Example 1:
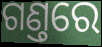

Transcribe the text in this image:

ଗଣ୍ତରେ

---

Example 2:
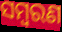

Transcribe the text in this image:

ସମ୍ଵରଣ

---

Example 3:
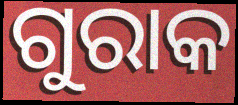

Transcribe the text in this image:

ଗୁରାକ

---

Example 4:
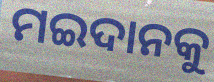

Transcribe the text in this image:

ମଇଦାନକୁ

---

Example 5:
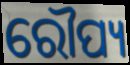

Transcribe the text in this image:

ରୌପ୍ୟ